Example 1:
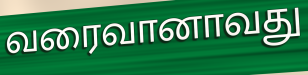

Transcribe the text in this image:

வரைவானாவது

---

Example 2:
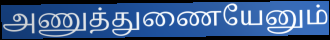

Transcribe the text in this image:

அணுத்துணையேனும்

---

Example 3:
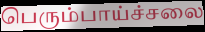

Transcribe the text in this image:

பெரும்பாய்ச்சலை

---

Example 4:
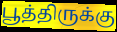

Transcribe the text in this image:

பூத்திருக்கு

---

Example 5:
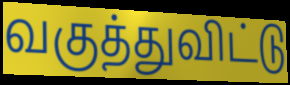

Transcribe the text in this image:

வகுத்துவிட்டு